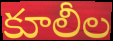
కూలీల